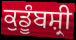
ਕੁਡੂੰਬਸ਼੍ਰੀ